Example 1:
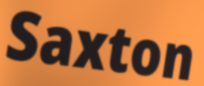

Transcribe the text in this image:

Saxton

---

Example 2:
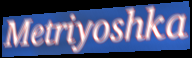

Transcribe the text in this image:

Metriyoshka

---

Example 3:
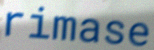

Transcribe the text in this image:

rimase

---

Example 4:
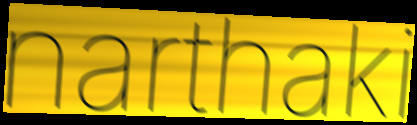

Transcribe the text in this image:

narthaki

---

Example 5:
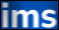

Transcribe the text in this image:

ims